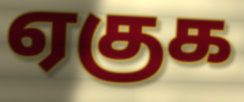
ஏகுக